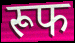
रूफ